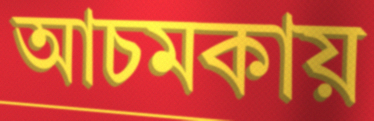
আচমকায়